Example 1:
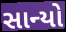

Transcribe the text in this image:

સાન્યો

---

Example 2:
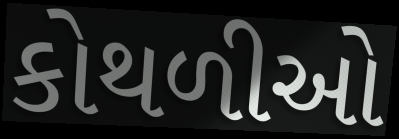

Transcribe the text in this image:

કોથળીઓ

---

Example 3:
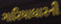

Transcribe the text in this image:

ગારિયાધારની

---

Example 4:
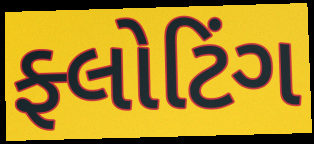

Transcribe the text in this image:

ફ્લોટિંગ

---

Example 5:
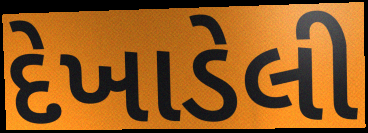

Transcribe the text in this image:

દેખાડેલી